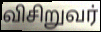
விசிறுவர்